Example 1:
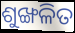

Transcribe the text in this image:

ଶୁଙ୍ଖଳିତ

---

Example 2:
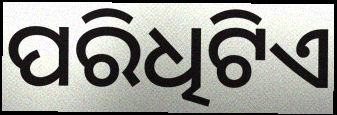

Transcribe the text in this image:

ପରିଧିଟିଏ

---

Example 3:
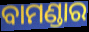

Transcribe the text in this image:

ବାମଣ୍ଡାର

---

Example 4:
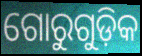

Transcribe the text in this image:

ଗୋରୁଗୁଡ଼ିକ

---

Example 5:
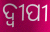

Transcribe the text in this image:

ଦ୍ୱୀପୀ